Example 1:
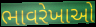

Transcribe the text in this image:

ભાવરેખાઓ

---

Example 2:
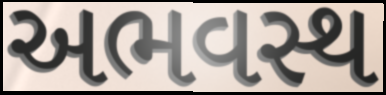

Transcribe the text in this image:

અભવસ્થ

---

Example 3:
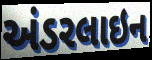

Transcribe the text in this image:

અંડરલાઇન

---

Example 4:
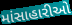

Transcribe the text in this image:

માંસાહારીઓ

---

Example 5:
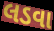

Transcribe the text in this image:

લડવા